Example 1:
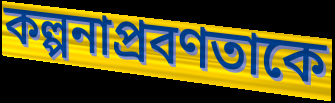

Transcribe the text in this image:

কল্পনাপ্রবণতাকে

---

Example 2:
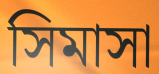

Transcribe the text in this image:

সিমাসা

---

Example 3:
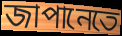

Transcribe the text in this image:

জাপানেতে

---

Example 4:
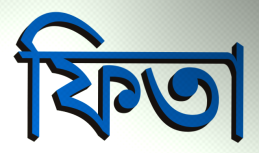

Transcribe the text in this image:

ফিতা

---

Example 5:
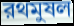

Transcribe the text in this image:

রথমুষল